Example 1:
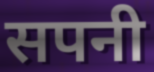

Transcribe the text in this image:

सपनी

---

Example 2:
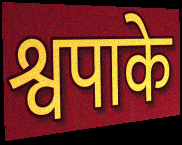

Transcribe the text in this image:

श्वपाके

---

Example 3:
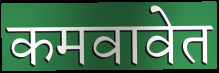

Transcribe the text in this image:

कमवावेत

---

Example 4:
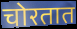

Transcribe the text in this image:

चोरतात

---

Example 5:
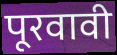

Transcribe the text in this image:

पूरवावी